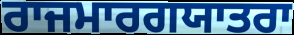
ਰਾਜਮਾਰਗਯਾਤਰਾ